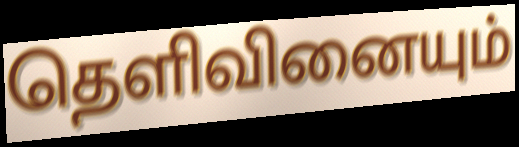
தெளிவினையும்